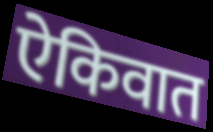
ऐकिवात